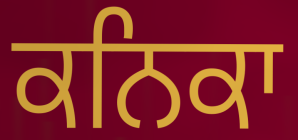
ਕਨਿਕਾ